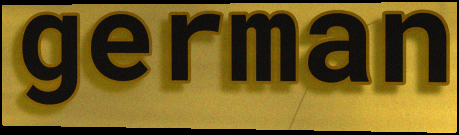
german